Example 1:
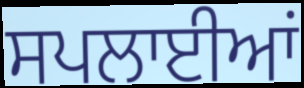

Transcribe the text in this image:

ਸਪਲਾਈਆਂ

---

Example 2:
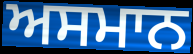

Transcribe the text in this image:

ਅਸਮਾਨ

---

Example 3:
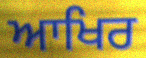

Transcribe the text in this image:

ਆਖਿਰ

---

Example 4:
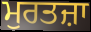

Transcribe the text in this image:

ਮੁਰਤਜ਼ਾ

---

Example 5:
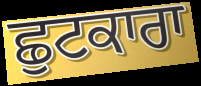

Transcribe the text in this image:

ਛੁਟਕਾਰਾ